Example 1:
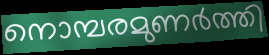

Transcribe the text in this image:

നൊമ്പരമുണർത്തി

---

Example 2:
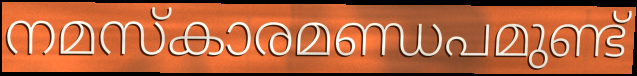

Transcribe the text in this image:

നമസ്കാരമണ്ഡപമുണ്ട്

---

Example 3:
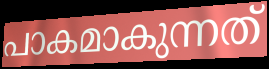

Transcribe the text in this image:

പാകമാകുന്നത്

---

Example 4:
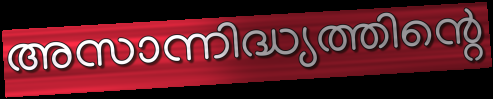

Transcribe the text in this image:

അസാന്നിദ്ധ്യത്തിന്റെ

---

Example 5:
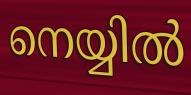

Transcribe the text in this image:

നെയ്യിൽ